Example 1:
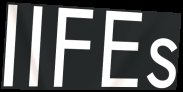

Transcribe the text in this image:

IIFEs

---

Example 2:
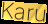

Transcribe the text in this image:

Karu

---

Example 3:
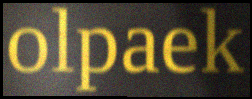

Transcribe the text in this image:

olpaek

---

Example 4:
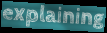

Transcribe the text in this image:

explaining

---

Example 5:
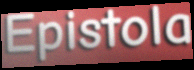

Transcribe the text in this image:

Epistola